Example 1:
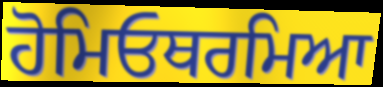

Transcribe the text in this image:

ਹੋਮਿਓਥਰਮਿਆ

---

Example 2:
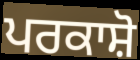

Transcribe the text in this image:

ਪਰਕਾਸ਼ੋ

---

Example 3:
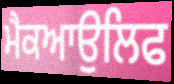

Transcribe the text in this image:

ਮੈਕਆਉਲਿਫ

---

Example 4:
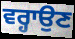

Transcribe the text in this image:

ਵਰ੍ਹਾਉਣ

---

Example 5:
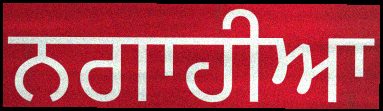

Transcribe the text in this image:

ਨਗਾਹੀਆ